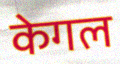
केगल